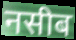
नसीब